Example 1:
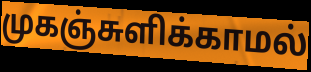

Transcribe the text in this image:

முகஞ்சுளிக்காமல்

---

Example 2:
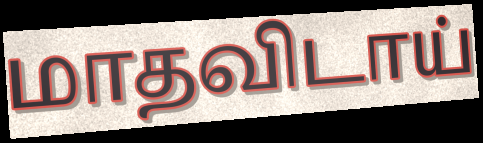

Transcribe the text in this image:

மாதவிடாய்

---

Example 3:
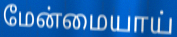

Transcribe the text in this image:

மேன்மையாய்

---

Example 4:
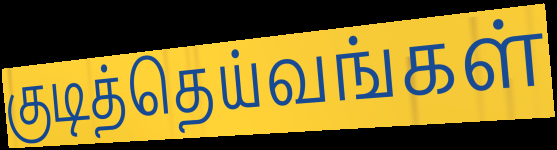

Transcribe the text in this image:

குடித்தெய்வங்கள்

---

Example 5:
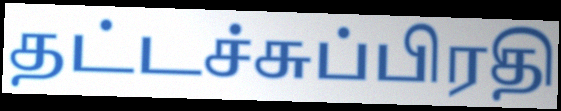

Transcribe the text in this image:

தட்டச்சுப்பிரதி